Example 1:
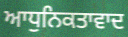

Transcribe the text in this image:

ਆਧੁਨਿਕਤਾਵਾਦ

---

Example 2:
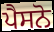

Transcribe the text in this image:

ਪੈਸਨੋ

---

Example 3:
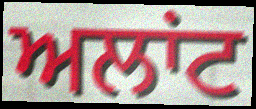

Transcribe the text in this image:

ਅਲਾਂਟ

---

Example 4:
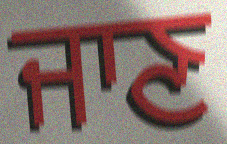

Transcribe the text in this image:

ਜਾਣ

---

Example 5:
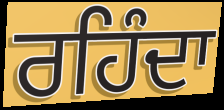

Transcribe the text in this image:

ਰਹਿੰਦਾ